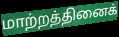
மாற்றத்தினைக்